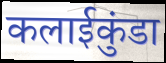
कलाईकुंडा